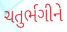
ચતુર્ભગીને